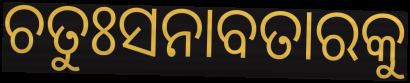
ଚତୁଃସନାବତାରକୁ